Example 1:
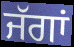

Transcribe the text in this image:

ਜੱਗਾਂ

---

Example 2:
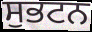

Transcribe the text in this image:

ਸੁਭਟਨ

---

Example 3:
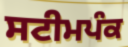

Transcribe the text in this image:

ਸਟੀਮਪੰਕ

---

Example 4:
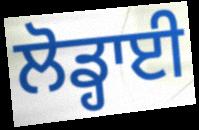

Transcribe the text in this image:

ਲੋਡ੍ਹਾਈ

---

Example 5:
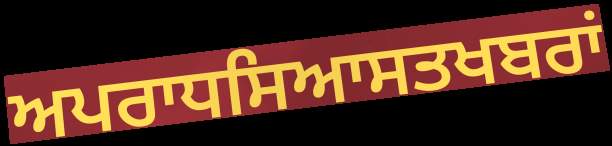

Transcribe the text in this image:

ਅਪਰਾਧਸਿਆਸਤਖਬਰਾਂ